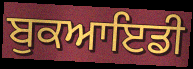
ਬੁਕਆਇਡੀ